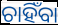
ଚାହିଁବା